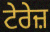
ਟੇਰੇਜ਼